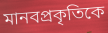
মানবপ্রকৃতিকে